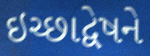
ઇચ્છાદ્વેષને